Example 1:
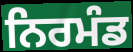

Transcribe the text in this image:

ਨਿਰਮੰਡ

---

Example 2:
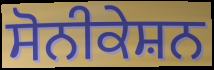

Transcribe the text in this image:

ਸੋਨੀਕੇਸ਼ਨ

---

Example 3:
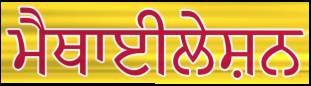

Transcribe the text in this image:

ਮੈਥਾਈਲੇਸ਼ਨ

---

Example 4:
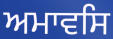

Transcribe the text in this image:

ਅਮਾਵਸਿ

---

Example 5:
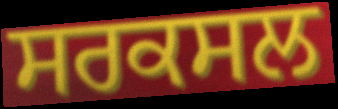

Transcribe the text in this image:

ਸਰਕਸਲ